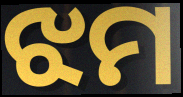
ଝମ